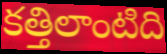
కత్తిలాంటిది